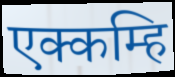
एक्कम्हि